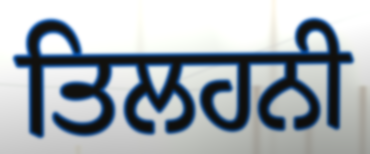
ਤਿਲਹਨੀ